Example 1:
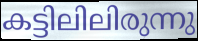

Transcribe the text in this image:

കട്ടിലിലിരുന്നു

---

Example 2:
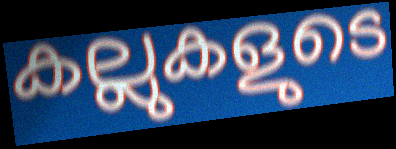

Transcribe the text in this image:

കല്ലുകളുടെ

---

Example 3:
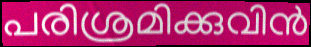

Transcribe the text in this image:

പരിശ്രമിക്കുവിൻ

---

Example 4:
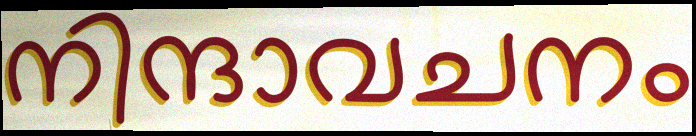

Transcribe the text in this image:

നിന്ദാവചനം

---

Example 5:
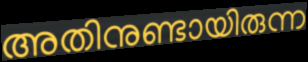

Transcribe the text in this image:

അതിനുണ്ടായിരുന്ന